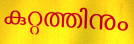
കുറ്റത്തിനും